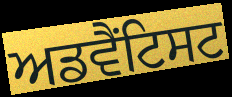
ਅਡਵੈਂਟਿਸਟ